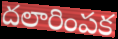
దలారింపక